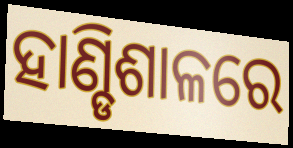
ହାଣ୍ଡିଶାଳରେ